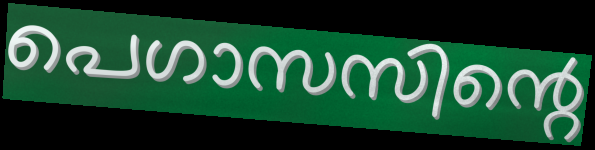
പെഗാസസിന്റെ